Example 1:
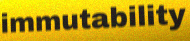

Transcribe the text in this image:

immutability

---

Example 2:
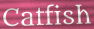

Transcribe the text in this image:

Catfish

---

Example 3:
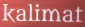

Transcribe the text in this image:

kalimat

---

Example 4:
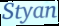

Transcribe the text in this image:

Styan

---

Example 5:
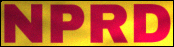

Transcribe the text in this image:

NPRD